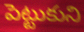
పెట్టుకుని